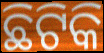
ଛିଟିକି